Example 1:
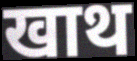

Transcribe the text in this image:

खाथ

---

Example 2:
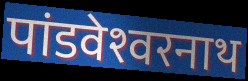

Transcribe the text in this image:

पांडवेश्वरनाथ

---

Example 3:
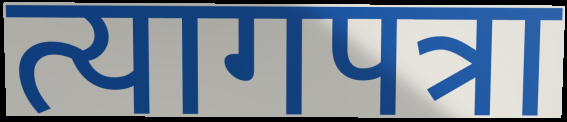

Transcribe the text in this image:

त्यागपत्रा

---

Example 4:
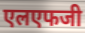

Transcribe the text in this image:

एलएफजी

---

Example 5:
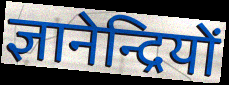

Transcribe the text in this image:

ज्ञानेन्द्रियों